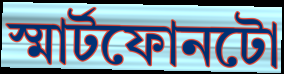
স্মাৰ্টফোনটো